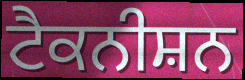
ਟੈਕਨੀਸ਼ਨ